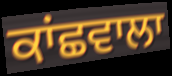
ਕਾਂਛਵਾਲਾ